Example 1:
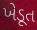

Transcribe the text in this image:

ખેડૂત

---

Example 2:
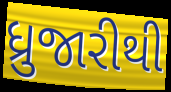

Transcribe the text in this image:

ધ્રુજારીથી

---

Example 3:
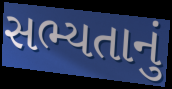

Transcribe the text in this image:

સભ્યતાનું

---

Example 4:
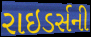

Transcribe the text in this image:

રાઇડર્સની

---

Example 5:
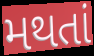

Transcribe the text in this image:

મથતાં